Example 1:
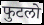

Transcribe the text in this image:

फुटलो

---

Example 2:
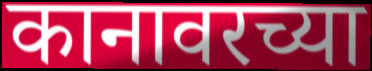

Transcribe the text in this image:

कानावरच्या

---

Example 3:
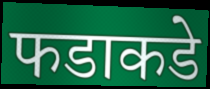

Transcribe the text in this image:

फडाकडे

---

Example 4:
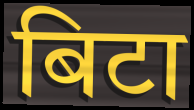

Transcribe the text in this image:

बिटा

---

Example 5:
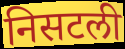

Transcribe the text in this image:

निसटली